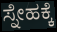
ಸ್ನೇಹಕ್ಕೆ